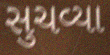
સુચવ્યા